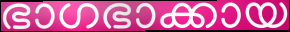
ഭാഗഭാക്കായ